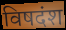
विषदंश